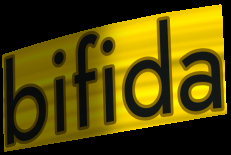
bifida